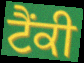
ਟੈਂਕੀ